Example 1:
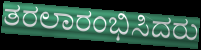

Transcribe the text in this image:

ತರಲಾರಂಭಿಸಿದರು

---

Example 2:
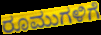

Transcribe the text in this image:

ರೂಮುಗಳಿಗೆ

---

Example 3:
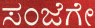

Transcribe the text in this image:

ಸಂಜೆಗೇ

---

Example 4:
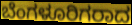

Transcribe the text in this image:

ಬೆಂಗಳೂರಿಗರಾದ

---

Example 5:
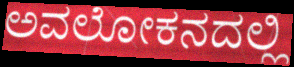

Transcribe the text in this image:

ಅವಲೋಕನದಲ್ಲಿ